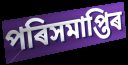
পৰিসমাপ্তিৰ